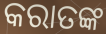
କରାତଙ୍କ